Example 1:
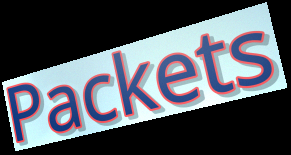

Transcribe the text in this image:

Packets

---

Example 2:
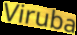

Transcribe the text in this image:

Viruba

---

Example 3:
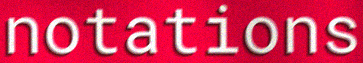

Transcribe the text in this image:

notations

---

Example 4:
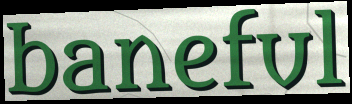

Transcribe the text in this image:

baneful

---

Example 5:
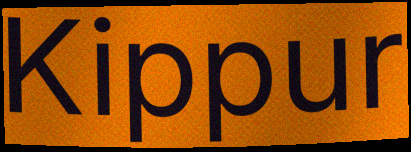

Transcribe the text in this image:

Kippur